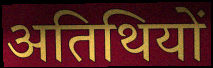
अतिथियों